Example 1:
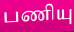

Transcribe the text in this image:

பணியு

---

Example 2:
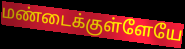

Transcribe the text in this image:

மண்டைக்குள்ளேயே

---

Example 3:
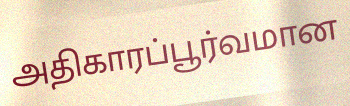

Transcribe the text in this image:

அதிகாரப்பூர்வமான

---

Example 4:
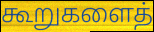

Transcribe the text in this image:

கூறுகளைத்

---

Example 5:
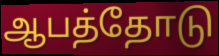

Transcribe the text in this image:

ஆபத்தோடு